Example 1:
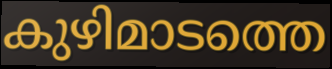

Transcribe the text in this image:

കുഴിമാടത്തെ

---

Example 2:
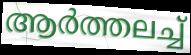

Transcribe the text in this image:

ആർത്തലച്ച്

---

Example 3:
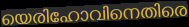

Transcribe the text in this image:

യെരിഹോവിനെതിരെ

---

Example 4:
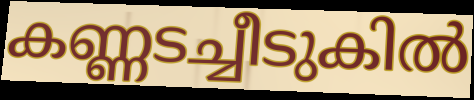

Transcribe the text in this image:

കണ്ണടച്ചീടുകിൽ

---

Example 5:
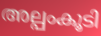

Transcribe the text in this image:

അല്പംകൂടി